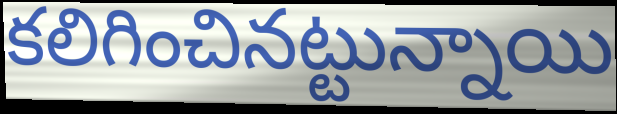
కలిగించినట్టున్నాయి